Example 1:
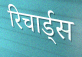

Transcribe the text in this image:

रिचार्ड्स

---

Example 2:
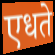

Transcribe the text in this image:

एधते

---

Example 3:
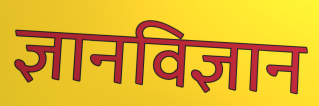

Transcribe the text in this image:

ज्ञानविज्ञान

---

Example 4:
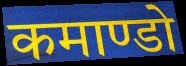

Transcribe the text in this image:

कमाण्डो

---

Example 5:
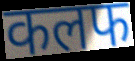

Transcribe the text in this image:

कलफ